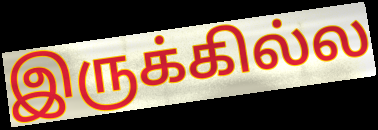
இருக்கில்ல